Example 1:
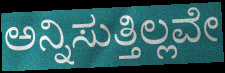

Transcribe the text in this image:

ಅನ್ನಿಸುತ್ತಿಲ್ಲವೇ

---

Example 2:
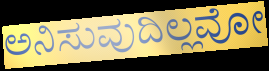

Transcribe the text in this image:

ಅನಿಸುವುದಿಲ್ಲವೋ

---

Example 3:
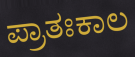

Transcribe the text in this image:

ಪ್ರಾತಃಕಾಲ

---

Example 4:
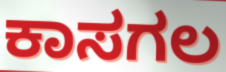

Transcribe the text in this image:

ಕಾಸಗಲ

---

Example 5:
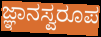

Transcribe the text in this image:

ಜ್ಞಾನಸ್ವರೂಪ